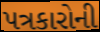
પત્રકારોની